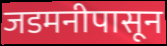
जडमनीपासून